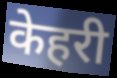
केहरी